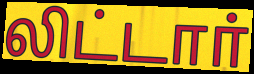
லிட்டார்